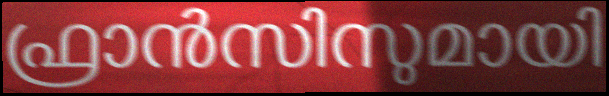
ഫ്രാൻസിസുമായി